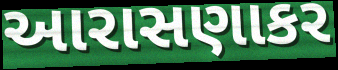
આરાસણાકર